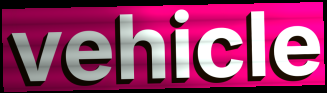
vehicle